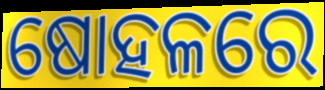
ଷୋହଳରେ